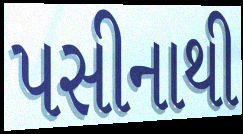
પસીનાથી